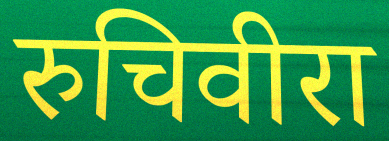
रुचिवीरा